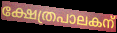
ക്ഷേത്രപാലകന്